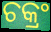
ଚକ୍ରଂ